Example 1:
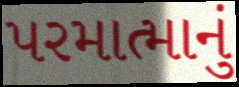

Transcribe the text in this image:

પરમાત્માનું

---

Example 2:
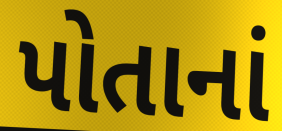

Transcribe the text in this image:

પોતાનાં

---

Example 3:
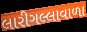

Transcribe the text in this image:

લારીગલ્લાવાળા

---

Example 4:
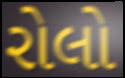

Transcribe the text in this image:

રોલો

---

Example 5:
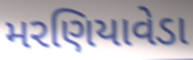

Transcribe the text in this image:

મરણિયાવેડા